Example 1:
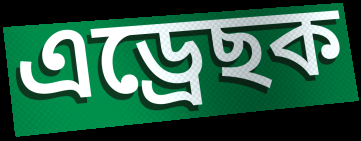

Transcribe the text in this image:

এড্ৰেছক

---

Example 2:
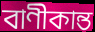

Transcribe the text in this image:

বাণীকান্ত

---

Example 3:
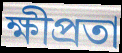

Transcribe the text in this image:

ক্ষীপ্ৰতা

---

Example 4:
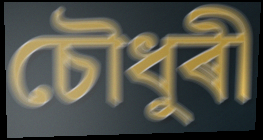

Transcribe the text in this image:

চৌধুৰী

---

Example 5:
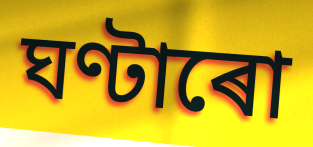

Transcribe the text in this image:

ঘণ্টাৰো